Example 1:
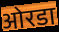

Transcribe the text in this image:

ओरडा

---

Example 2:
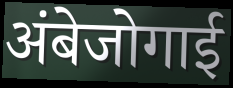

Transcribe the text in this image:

अंबेजोगाई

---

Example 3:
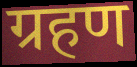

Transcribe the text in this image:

ग्रहण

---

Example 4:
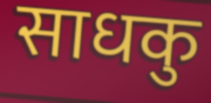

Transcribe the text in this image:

साधकु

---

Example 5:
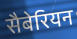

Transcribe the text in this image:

सैबेरियन